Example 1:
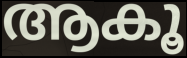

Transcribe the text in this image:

ആകൂ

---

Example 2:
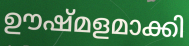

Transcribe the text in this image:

ഊഷ്മളമാക്കി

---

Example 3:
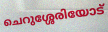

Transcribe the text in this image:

ചെറുശ്ശേരിയോട്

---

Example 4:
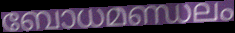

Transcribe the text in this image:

ബോധമണ്ഡലം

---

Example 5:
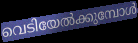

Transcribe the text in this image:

വെടിയേൽക്കുമ്പോൾ